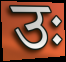
उः